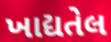
ખાદ્યતેલ